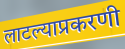
लाटल्याप्रकरणी